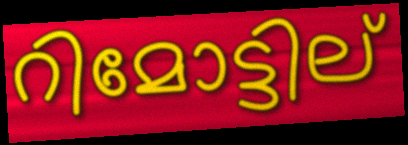
റിമോട്ടില്